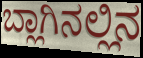
ಬ್ಲಾಗಿನಲ್ಲಿನ